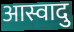
आस्वादु